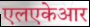
एलएकेआर